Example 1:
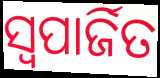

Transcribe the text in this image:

ସ୍ଵପାର୍ଜିତ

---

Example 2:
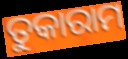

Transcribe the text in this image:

ତୁକାରାମ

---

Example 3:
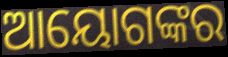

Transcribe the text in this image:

ଆୟୋଗଙ୍କର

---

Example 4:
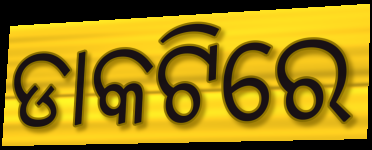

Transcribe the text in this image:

ଡାକଟିରେ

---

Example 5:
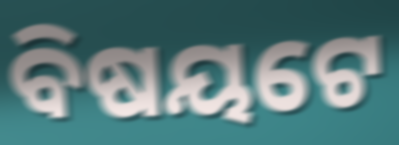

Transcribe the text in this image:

ବିଷୟଟେ